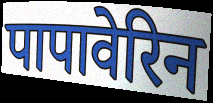
पापावेरिन